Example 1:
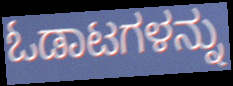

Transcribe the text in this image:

ಓಡಾಟಗಳನ್ನು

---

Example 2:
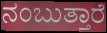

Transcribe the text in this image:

ನಂಬುತ್ತಾರೆ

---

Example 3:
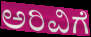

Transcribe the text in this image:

ಅರಿವಿಗೆ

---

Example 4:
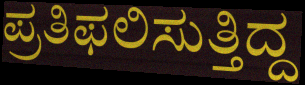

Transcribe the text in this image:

ಪ್ರತಿಫಲಿಸುತ್ತಿದ್ದ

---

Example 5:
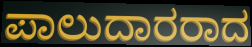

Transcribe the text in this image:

ಪಾಲುದಾರರಾದ